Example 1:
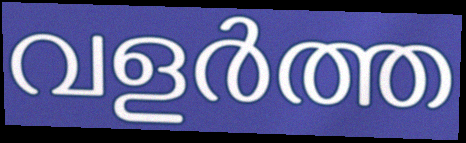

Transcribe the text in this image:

വളർത്ത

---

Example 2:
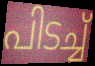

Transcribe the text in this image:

പിടച്ച്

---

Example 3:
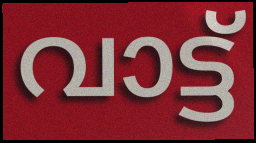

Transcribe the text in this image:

വാട്ട്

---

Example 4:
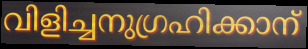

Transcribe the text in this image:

വിളിച്ചനുഗ്രഹിക്കാന്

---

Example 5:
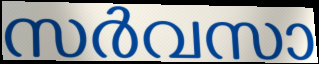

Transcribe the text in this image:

സർവസാ